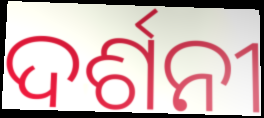
ଦର୍ଶନୀ